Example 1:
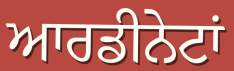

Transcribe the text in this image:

ਆਰਡੀਨੇਟਾਂ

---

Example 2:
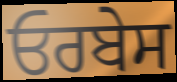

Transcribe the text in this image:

ਓਰਬੇਸ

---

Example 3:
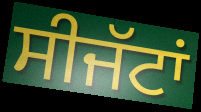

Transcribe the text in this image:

ਸੀਜੱਟਾਂ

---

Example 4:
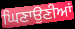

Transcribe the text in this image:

ਘਿਣਾਉਣੀਆਂ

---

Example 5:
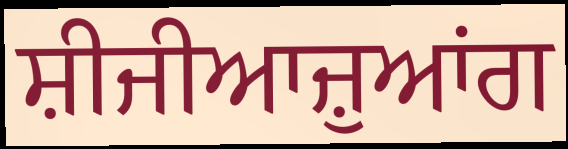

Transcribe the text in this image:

ਸ਼ੀਜੀਆਜ਼ੁਆਂਗ